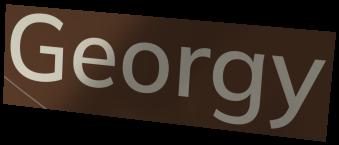
Georgy